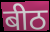
बीठ